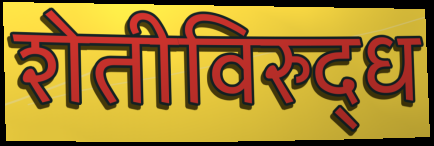
शेतीविरुद्ध